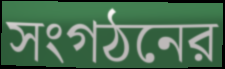
সংগঠনের